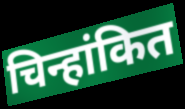
चिन्हांकित